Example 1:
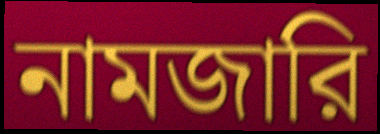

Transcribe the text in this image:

নামজারি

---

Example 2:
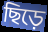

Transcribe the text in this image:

ছিড়ে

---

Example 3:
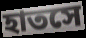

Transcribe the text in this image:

হাতসে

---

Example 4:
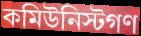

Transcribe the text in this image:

কমিউনিস্টগণ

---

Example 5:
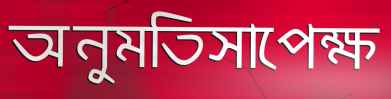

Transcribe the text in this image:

অনুমতিসাপেক্ষ